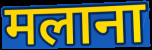
मलाना